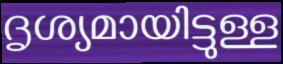
ദൃശ്യമായിട്ടുള്ള